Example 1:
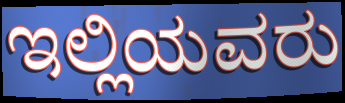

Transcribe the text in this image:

ಇಲ್ಲಿಯವರು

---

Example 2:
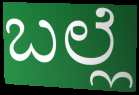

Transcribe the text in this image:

ಬಲ್ಲೆ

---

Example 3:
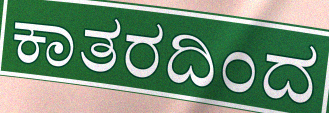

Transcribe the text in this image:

ಕಾತರದಿಂದ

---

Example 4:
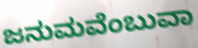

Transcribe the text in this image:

ಜನುಮವೆಂಬುವಾ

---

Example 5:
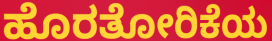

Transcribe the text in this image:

ಹೊರತೋರಿಕೆಯ